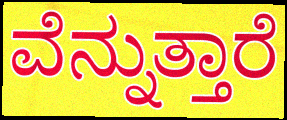
ವೆನ್ನುತ್ತಾರೆ